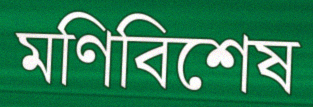
মণিবিশেষ